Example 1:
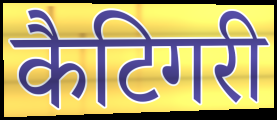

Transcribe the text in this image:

कैटिगरी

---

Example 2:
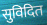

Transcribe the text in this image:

सुविदित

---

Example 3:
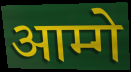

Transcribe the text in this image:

आम्गे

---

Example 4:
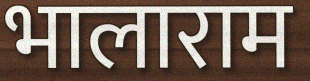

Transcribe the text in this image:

भालाराम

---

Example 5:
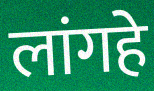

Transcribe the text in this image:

लांगहे